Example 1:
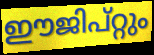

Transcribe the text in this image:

ഈജിപ്റ്റും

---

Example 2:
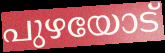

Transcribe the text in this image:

പുഴയോട്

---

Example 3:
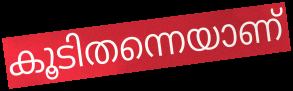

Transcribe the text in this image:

കൂടിതന്നെയാണ്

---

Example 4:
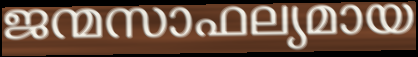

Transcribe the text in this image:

ജന്മസാഫല്യമായ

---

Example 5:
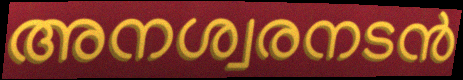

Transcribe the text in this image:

അനശ്വരനടൻ